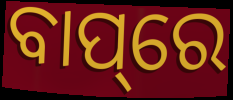
ବାପ୍‌ରେ